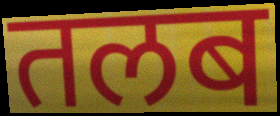
तलब